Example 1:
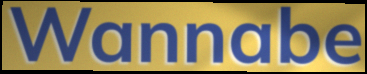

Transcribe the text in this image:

Wannabe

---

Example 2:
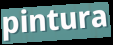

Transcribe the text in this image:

pintura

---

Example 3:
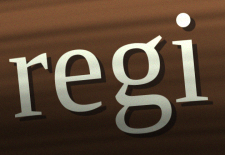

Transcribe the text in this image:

regi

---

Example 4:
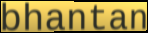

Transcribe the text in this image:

bhantan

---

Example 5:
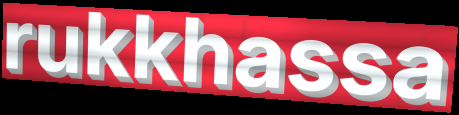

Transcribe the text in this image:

rukkhassa